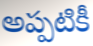
అప్పటికీ